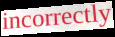
incorrectly